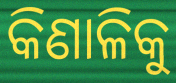
କିଣାଳିକୁ